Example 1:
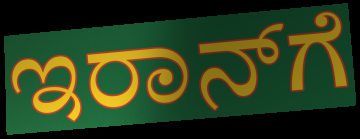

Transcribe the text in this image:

ಇರಾನ್‌ಗೆ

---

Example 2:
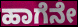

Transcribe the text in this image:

ಹಾಗೆನೇ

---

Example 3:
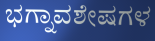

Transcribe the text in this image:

ಭಗ್ನಾವಶೇಷಗಳ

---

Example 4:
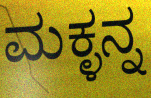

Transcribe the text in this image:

ಮಕ್ಳನ್ನ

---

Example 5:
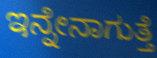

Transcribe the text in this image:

ಇನ್ನೇನಾಗುತ್ತೆ